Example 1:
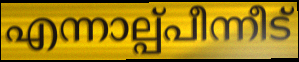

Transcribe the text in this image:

എന്നാല്പ്പീന്നീട്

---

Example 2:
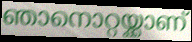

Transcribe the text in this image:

ഞാനൊറ്റയ്ക്കാണ്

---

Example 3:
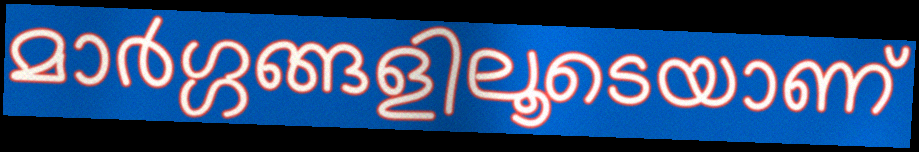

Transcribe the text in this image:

മാർഗ്ഗങ്ങളിലൂടെയാണ്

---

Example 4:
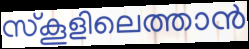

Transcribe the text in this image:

സ്കൂളിലെത്താൻ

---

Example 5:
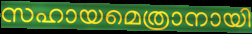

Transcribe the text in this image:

സഹായമെത്രാനായി